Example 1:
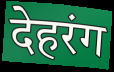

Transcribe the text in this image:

देहरंग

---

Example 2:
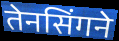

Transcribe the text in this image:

तेनसिंगने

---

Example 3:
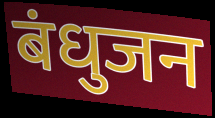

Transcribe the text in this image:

बंधुजन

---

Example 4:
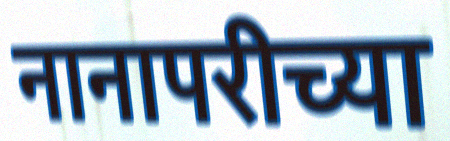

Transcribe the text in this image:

नानापरीच्या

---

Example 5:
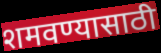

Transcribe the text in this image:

शमवण्यासाठी